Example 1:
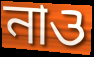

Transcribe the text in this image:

নাও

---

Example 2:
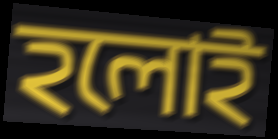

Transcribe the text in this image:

হলোই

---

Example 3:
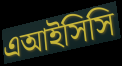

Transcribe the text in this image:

এআইসিসি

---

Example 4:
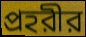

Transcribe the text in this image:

প্রহরীর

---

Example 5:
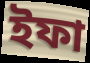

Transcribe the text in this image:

ইফা